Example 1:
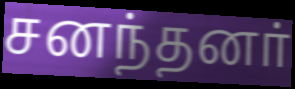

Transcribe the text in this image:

சனந்தனர்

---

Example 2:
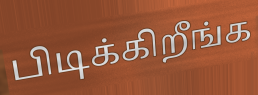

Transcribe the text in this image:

பிடிக்கிறீங்க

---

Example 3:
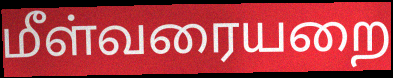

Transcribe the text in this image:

மீள்வரையறை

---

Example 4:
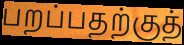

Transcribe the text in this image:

பறப்பதற்குத்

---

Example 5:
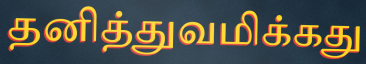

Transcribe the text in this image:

தனித்துவமிக்கது